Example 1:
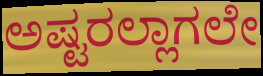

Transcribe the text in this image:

ಅಷ್ಟರಲ್ಲಾಗಲೇ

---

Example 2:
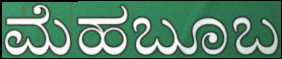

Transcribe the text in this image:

ಮೆಹಬೂಬ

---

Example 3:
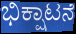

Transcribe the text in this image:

ಭಿಕ್ಷಾಟನೆ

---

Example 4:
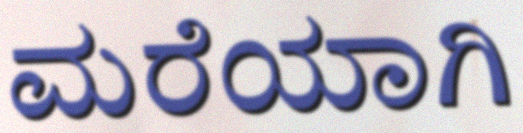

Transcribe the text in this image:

ಮರೆಯಾಗಿ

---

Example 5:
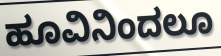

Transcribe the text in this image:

ಹೂವಿನಿಂದಲೂ